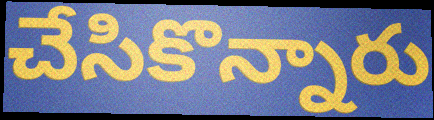
చేసికొన్నారు